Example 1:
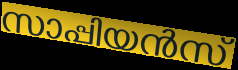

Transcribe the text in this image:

സാപ്പിയൻസ്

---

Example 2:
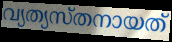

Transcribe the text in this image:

വ്യത്യസ്തനായത്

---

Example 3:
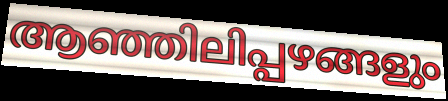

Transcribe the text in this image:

ആഞ്ഞിലിപ്പഴങ്ങളും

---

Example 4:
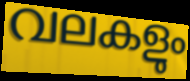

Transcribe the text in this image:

വലകളും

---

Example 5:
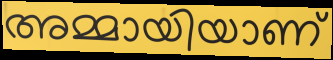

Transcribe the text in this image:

അമ്മായിയാണ്